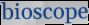
bioscope